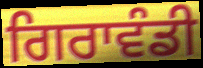
ਗਿਰਾਵੰਡੀ